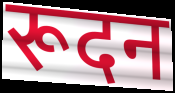
रूदन